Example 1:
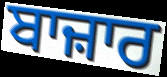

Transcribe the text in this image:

ਬਾਜ਼ਾਰ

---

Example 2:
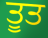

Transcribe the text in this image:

ਤੂਤ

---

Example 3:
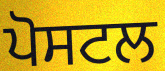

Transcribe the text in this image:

ਪੋਸਟਲ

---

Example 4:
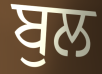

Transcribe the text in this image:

ਬੁਲ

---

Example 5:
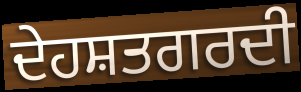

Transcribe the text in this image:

ਦੇਹਸ਼ਤਗਰਦੀ